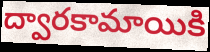
ద్వారకామాయికి